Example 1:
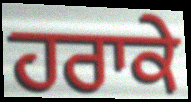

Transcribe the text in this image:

ਹਰਾਕੇ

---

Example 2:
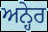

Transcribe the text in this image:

ਅਨ੍ਹੇਰ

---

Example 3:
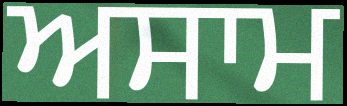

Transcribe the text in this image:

ਅਸਾਮ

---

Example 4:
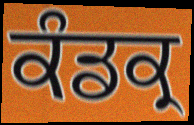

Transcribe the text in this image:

ਕੰਡਕ੍ਰ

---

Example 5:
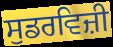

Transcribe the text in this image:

ਸੁਡਰਵਿਜ਼ੀ